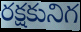
రక్షకునిగ